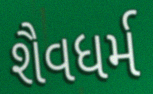
શૈવધર્મ